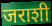
जराशी